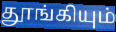
தூங்கியும்